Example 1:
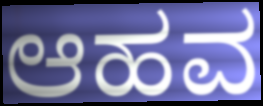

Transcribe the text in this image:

ಆಹವ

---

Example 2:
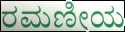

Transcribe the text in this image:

ರಮಣೀಯ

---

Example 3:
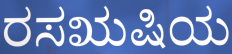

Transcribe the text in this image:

ರಸಋಷಿಯ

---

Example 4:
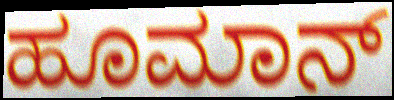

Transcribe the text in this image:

ಹೂಮಾನ್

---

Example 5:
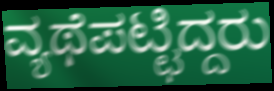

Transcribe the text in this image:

ವ್ಯಥೆಪಟ್ಟಿದ್ದರು